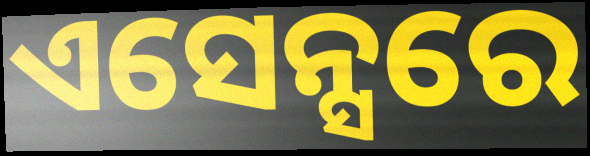
ଏସେନ୍ସରେ